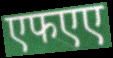
एफएए